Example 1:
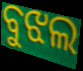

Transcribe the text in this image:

ବୁଝଲ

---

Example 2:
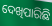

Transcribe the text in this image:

ଦେଖିପାରିଛି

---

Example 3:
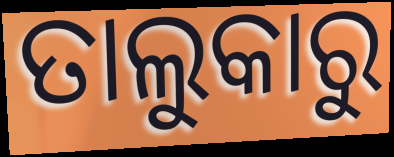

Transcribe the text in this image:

ତାଲୁକାରୁ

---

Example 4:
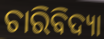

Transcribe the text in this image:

ଚାରିବିଦ୍ୟା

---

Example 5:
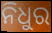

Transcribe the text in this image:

ନିଧୁର